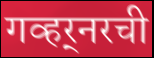
गव्हर्नरची